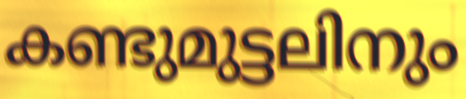
കണ്ടുമുട്ടലിനും